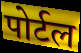
पोर्टल